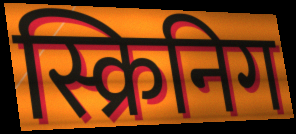
स्क्रिनिग